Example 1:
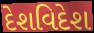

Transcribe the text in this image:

દેશવિદેશ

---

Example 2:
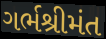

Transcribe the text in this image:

ગર્ભશ્રીમંત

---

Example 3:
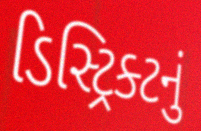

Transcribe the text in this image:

ડિસ્ટ્રિક્ટનું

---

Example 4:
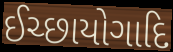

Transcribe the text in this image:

ઈચ્છાયોગાદિ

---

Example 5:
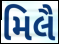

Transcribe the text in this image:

મિલૈ